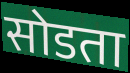
सोडता